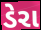
ડેરા